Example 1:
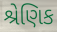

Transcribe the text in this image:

શ્રેણિક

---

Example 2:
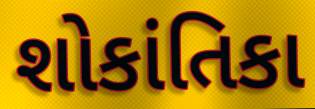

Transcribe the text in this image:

શોકાંતિકા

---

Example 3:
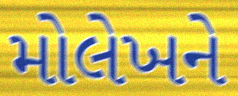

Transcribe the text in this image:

મોલેખને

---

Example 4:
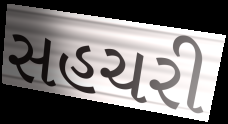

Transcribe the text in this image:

સહચરી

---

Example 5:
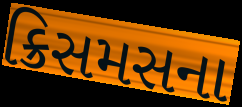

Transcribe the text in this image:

ક્રિસમસના